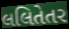
લલિતેતર